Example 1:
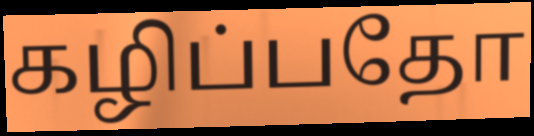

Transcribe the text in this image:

கழிப்பதோ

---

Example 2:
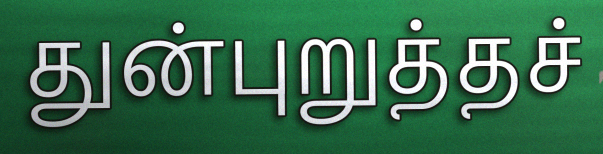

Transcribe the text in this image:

துன்புறுத்தச்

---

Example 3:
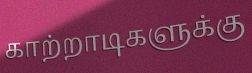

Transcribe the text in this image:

காற்றாடிகளுக்கு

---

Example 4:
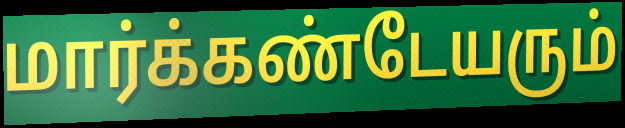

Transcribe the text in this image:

மார்க்கண்டேயரும்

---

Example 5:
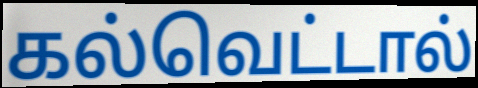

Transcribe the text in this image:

கல்வெட்டால்